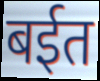
बईत